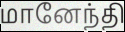
மானேந்தி